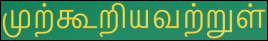
முற்கூறியவற்றுள்